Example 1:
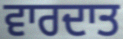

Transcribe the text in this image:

ਵਾਰਦਾਤ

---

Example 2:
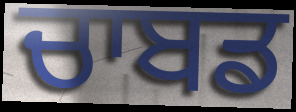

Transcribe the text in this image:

ਚਾਬਡ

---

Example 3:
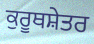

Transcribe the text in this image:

ਕੁਰੂਥਸ਼ੇਤਰ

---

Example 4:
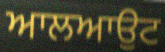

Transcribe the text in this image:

ਆਲਆਉਟ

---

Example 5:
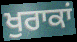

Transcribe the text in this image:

ਖੁਰਾਕਾਂ